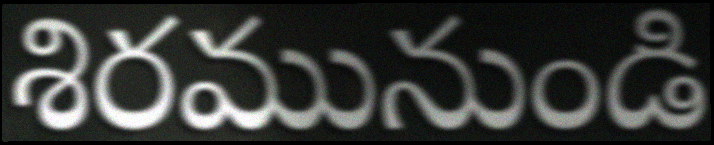
శిరమునుండి